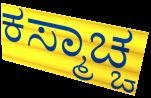
ಕಸ್ಮಾಚ್ಚ